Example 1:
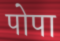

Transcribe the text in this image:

पोपा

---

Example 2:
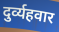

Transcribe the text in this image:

दुर्व्यहवार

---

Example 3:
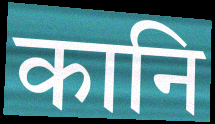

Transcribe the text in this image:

कानि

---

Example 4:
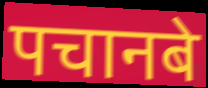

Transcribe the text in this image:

पचानबे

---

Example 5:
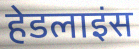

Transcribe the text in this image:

हेडलाइंस